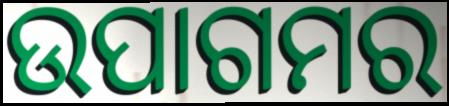
ଉପାଗମର